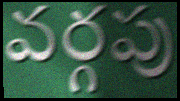
వర్గపు